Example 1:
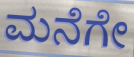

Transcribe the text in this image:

ಮನೆಗೇ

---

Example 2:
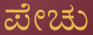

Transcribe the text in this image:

ಪೇಚು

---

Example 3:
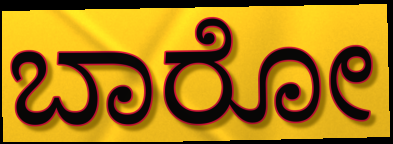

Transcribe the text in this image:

ಬಾರೋ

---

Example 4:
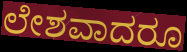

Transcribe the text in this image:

ಲೇಶವಾದರೂ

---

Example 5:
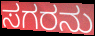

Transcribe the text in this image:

ಸಗರನು